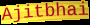
Ajitbhai